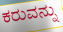
ಕರುವನ್ನು